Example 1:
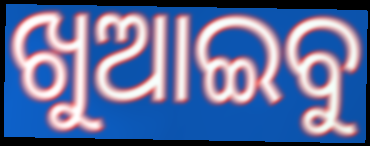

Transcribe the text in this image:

ଖୁଆଇବୁ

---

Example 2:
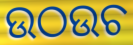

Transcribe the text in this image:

ଉଠଉଚ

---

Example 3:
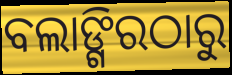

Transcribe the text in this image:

ବଲାଙ୍ଗିରଠାରୁ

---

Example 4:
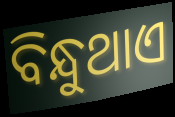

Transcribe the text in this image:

ବିନ୍ଧୁଥାଏ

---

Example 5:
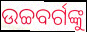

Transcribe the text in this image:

ଉଚ୍ଚବର୍ଗଙ୍କୁ